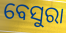
ବେସୁରା